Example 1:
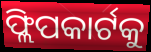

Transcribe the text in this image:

ଫ୍ଲିପକାର୍ଟକୁ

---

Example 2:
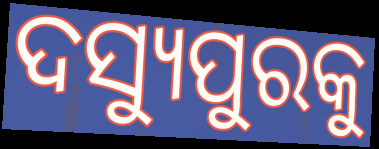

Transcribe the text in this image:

ଦସ୍ୟୁପୁରକୁ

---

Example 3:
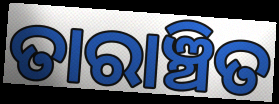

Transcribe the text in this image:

ତାରାଞ୍ଚିତ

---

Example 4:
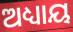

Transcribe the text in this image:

ଅଧ୍ୟାୟ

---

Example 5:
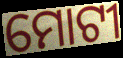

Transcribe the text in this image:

ମୋଟୀ